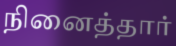
நினைத்தார்